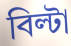
বিল্টা